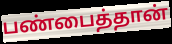
பண்பைத்தான்